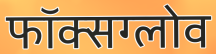
फॉक्सग्लोव